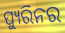
ପ୍ୟୁରିନର